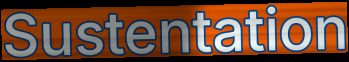
Sustentation